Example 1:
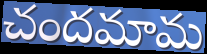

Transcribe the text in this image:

చందమామ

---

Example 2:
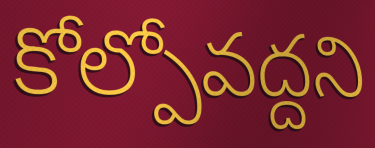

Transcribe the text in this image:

కోల్పోవద్దని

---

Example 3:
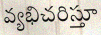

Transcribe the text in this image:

వ్యభిచరిస్తూ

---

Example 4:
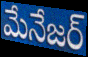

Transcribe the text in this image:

మేనేజర్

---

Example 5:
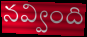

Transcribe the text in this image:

నవ్వింది